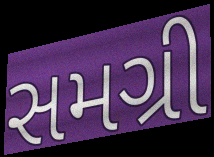
સમગ્રી